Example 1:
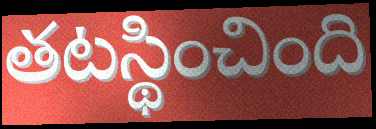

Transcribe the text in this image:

తటస్థించింది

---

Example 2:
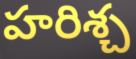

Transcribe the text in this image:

హరిశ్చ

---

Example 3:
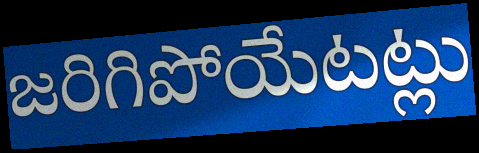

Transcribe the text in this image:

జరిగిపోయేటట్లు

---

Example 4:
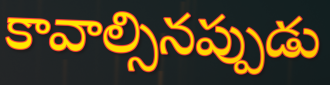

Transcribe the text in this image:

కావాల్సినప్పుడు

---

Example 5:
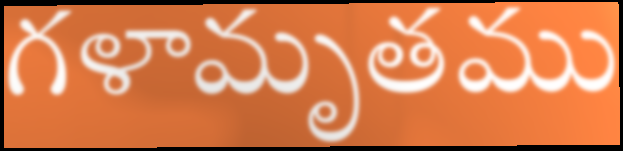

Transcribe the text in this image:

గళామృతము